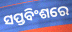
ସପ୍ତବିଂଶରେ